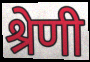
श्रेणी